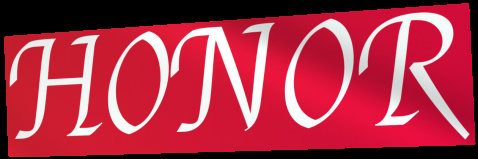
HONOR